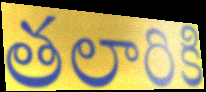
తలారికి